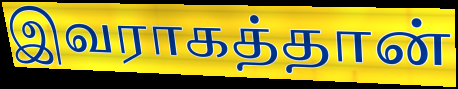
இவராகத்தான்